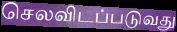
செலவிடப்படுவது